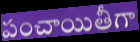
పంచాయితీగా